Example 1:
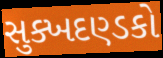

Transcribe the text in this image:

સુક્ખદણ્ડકો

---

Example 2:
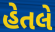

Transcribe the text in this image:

હેતલે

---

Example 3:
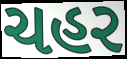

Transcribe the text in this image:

ચહર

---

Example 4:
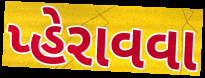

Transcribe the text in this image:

પ્હેરાવવા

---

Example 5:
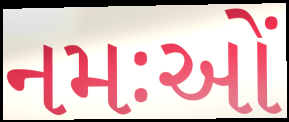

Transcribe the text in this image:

નમઃઓં